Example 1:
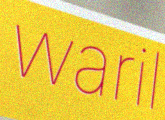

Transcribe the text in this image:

waril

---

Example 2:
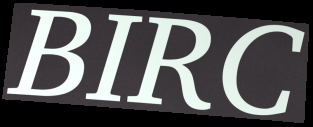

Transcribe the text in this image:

BIRC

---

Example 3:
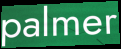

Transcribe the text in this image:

palmer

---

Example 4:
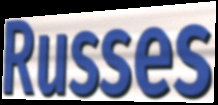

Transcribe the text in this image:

Russes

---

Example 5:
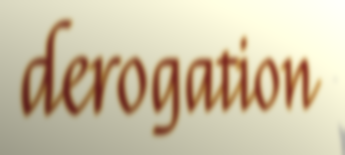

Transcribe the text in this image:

derogation